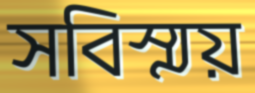
সবিস্ময়